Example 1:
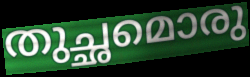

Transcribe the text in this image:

തുച്ഛമൊരു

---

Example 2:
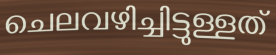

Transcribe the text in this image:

ചെലവഴിച്ചിട്ടുള്ളത്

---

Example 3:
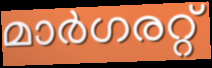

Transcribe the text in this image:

മാർഗരറ്റ്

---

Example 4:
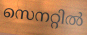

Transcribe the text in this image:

സെനറ്റിൽ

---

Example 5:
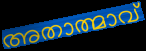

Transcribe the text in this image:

അതാത്മാവ്